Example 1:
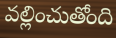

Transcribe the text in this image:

వల్లించుతోంది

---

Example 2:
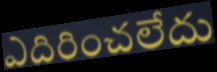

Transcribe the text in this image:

ఎదిరించలేదు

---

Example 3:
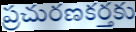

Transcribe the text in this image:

ప్రచురణకర్తకు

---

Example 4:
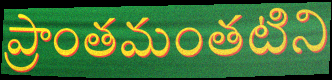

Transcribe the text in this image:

ప్రాంతమంతటిని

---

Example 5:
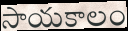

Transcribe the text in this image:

సాయకాలం